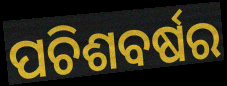
ପଚିଶବର୍ଷର